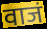
वाजं